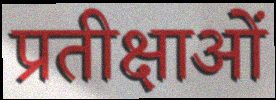
प्रतीक्षाओं